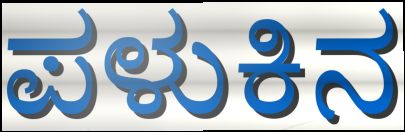
ಪಳುಕಿನ